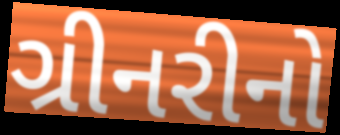
ગ્રીનરીનો